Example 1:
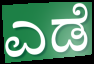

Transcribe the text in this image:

ಎಡೆ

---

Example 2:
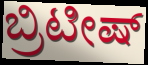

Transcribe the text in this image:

ಬ್ರಿಟೀಷ್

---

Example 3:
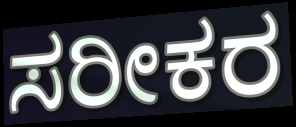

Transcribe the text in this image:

ಸರೀಕರ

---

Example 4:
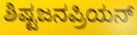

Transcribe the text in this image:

ಶಿಷ್ಟಜನಪ್ರಿಯನ್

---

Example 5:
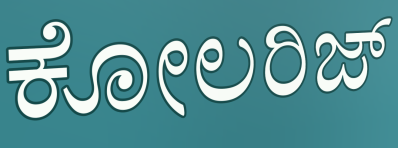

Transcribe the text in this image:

ಕೋಲರಿಜ್